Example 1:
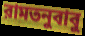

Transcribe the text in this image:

রামতনুবাবু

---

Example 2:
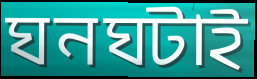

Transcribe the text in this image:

ঘনঘটাই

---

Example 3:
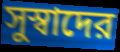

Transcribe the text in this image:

সুস্বাদের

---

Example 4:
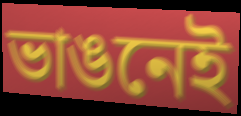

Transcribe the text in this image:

ভাঙনেই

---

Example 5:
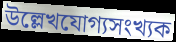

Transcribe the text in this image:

উল্লেখযোগ্যসংখ্যক